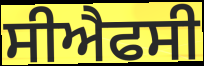
ਸੀਐਫਸੀ